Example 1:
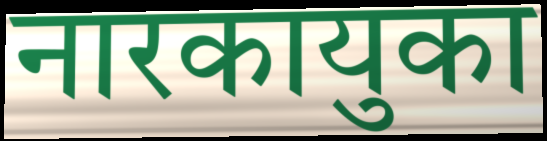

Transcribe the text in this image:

नारकायुका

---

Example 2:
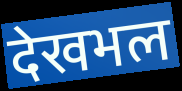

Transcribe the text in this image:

देखभल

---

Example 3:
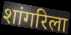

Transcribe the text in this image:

शांगरिला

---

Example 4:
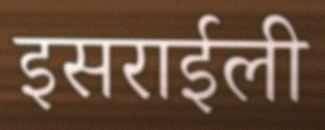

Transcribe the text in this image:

इसराईली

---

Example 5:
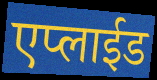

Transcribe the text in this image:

एप्लाईड